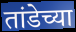
तांडेच्या